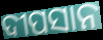
ଦୀପସାନ